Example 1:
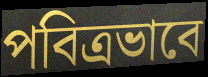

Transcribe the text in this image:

পবিত্রভাবে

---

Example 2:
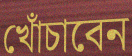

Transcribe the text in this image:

খোঁচাবেন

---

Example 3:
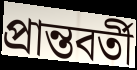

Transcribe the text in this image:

প্রান্তবর্তী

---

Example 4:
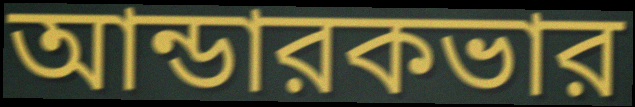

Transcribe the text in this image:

আন্ডারকভার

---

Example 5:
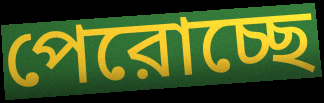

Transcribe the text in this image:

পেরোচ্ছে